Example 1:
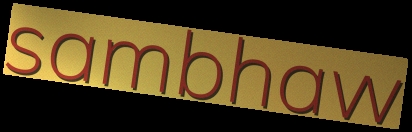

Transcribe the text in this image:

sambhaw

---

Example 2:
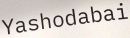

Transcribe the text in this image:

Yashodabai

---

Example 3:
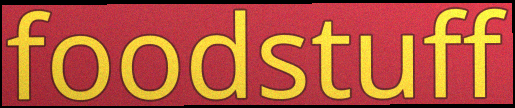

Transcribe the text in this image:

foodstuff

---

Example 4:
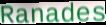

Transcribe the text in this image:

Ranades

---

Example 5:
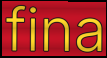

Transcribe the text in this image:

fina